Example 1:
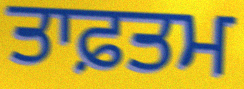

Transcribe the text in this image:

ਤਾਫ਼ਤਮ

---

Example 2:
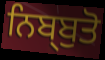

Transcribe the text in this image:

ਨਿਬ੍ਬੁਤੋ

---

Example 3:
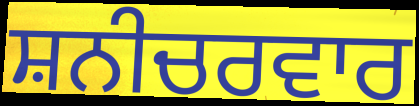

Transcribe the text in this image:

ਸ਼ਨੀਚਰਵਾਰ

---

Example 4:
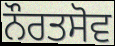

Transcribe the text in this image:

ਨੌਰਤਸੋਵ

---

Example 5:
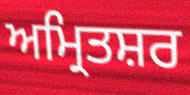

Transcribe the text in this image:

ਅਮ੍ਰਿਤਸ਼ਰ